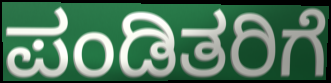
ಪಂಡಿತರಿಗೆ